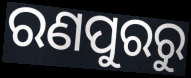
ରଣପୁରରୁ